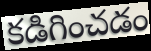
కడిగించడం